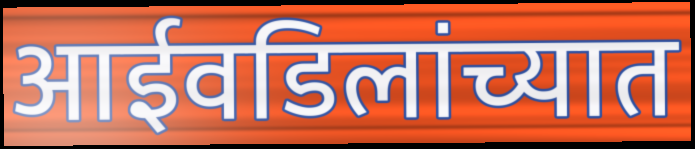
आईवडिलांच्यात